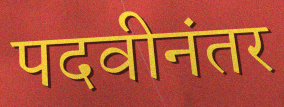
पदवीनंतर